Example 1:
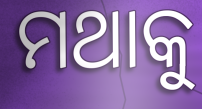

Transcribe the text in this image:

ମଥାକୁ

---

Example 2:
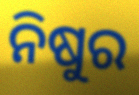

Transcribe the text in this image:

ନିଷୁର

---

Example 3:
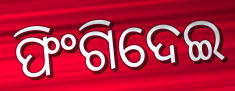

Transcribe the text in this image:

ଫିଂଗିଦେଇ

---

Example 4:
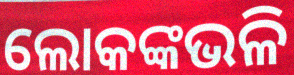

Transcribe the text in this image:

ଲୋକଙ୍କଭଳି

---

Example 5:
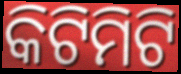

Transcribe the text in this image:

କିଟିମିଟି